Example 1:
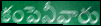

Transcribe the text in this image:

కంపెనీవారు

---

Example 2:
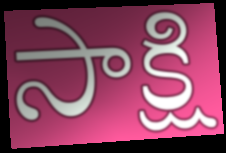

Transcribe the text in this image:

సాక్షి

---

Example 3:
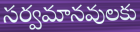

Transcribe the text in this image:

సర్వమానవులకు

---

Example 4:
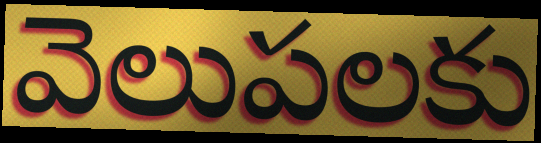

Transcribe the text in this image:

వెలుపలకు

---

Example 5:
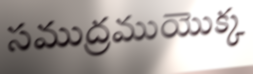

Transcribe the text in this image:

సముద్రముయొక్క